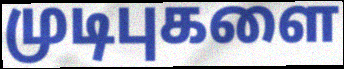
முடிபுகளை